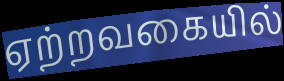
ஏற்றவகையில்